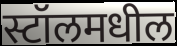
स्टॉलमधील